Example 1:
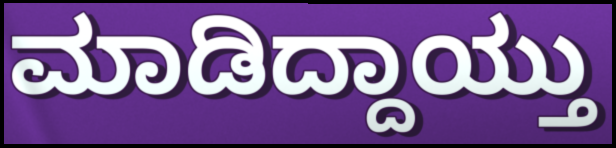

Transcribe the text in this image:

ಮಾಡಿದ್ದಾಯ್ತು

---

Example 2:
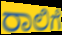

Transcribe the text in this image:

ರಾಲಿಗೆ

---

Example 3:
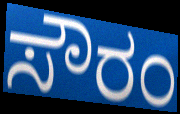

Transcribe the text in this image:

ಸೌರಂ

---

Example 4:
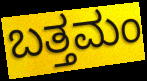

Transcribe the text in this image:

ಬತ್ತಮಂ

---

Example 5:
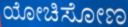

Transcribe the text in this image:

ಯೋಚಿಸೋಣ